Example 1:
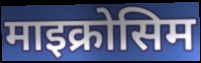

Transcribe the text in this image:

माइक्रोसिम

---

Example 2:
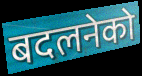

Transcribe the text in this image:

बदलनेको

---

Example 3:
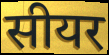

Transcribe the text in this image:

सीयर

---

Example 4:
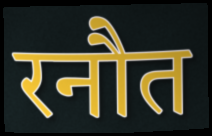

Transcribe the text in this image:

रनौत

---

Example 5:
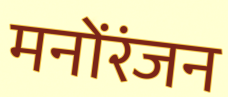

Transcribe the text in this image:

मनोंरंजन